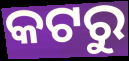
କଟରୁ